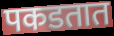
पकडतात